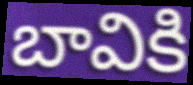
బావికి